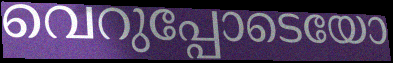
വെറുപ്പോടെയോ